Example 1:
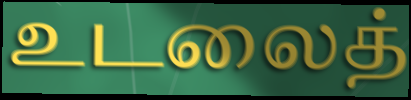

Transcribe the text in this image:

உடலைத்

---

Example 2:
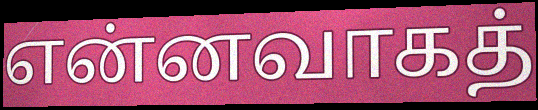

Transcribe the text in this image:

என்னவாகத்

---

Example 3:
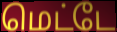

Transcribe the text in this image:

மெட்டே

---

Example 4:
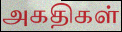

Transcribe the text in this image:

அகதிகள்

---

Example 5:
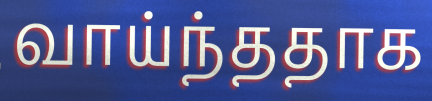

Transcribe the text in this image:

வாய்ந்ததாக